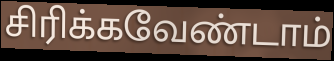
சிரிக்கவேண்டாம்